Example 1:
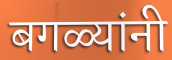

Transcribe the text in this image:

बगळ्यांनी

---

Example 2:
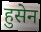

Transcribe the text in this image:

हुसेन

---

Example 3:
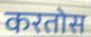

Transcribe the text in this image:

करतोस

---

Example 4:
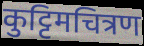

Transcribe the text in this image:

कुट्टिमचित्रण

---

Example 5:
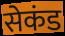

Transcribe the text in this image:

सेकंड